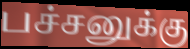
பச்சனுக்கு